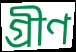
গ্ৰীণ